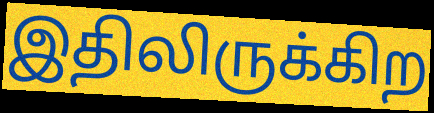
இதிலிருக்கிற